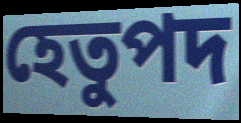
হেতুপদ